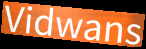
Vidwans